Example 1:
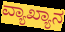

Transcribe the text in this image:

ವ್ಯಾಖ್ಯಾನ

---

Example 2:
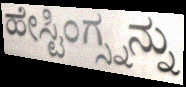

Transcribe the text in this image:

ಹೇಸ್ಟಿಂಗ್ಸ್ನನ್ನು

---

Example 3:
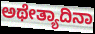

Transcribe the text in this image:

ಅಥೇತ್ಯಾದಿನಾ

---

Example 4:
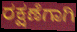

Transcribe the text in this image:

ರಕ್ಷಣೆಗಾಗಿ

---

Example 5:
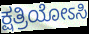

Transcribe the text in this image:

ಕ್ಷತ್ರಿಯೋಽಸಿ